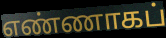
எண்ணாகப்